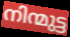
നിന്മുട്ട